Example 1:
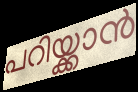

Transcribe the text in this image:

പറിയ്ക്കാൻ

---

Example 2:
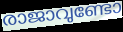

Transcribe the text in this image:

രാജാവുണ്ടോ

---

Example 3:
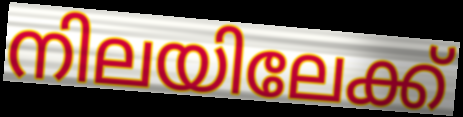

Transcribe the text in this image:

നിലയിലേക്ക്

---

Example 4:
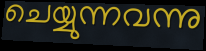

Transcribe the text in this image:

ചെയ്യുന്നവന്നു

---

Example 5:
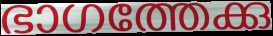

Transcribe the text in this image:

ഭാഗത്തേക്കു